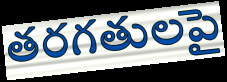
తరగతులపై